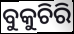
ବୁକୁଚିରି